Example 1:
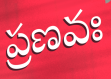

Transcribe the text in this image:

ప్రణవః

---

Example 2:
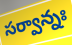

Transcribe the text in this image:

సర్వాన్నః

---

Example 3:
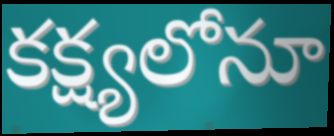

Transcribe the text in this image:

కక్ష్యలోనూ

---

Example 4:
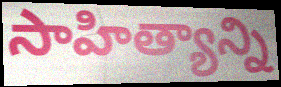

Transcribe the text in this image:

సాహిత్యాన్ని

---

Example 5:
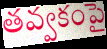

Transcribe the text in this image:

తవ్వకంపై